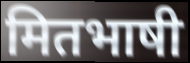
मितभाषी